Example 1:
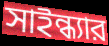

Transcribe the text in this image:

সাইন্ধ্যার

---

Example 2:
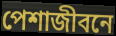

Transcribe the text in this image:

পেশাজীবনে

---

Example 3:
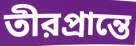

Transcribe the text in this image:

তীরপ্রান্তে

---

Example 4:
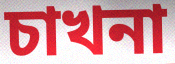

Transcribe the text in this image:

চাখনা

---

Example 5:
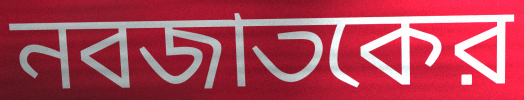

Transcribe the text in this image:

নবজাতকের